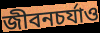
জীবনচর্যাও